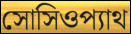
সোসিওপ্যাথ